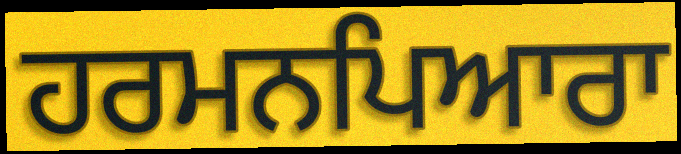
ਹਰਮਨਪਿਆਰਾ